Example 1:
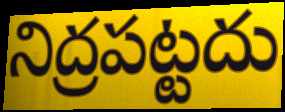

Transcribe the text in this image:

నిద్రపట్టదు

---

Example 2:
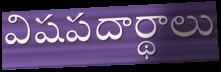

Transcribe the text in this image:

విషపదార్థాలు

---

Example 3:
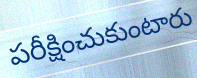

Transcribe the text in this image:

పరీక్షించుకుంటారు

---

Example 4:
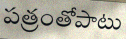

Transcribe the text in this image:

పత్రంతోపాటు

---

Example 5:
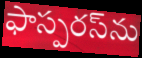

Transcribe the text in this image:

ఫాస్పరస్‌ను